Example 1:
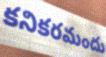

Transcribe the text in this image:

కనికరమందు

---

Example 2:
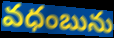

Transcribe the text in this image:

వధంబును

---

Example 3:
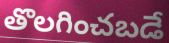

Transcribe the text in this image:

తొలగించబడే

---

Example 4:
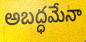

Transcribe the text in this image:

అబద్ధమేనా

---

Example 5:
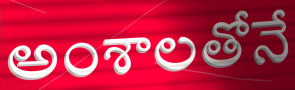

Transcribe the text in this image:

అంశాలతోనే